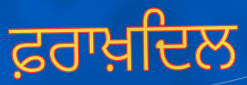
ਫ਼ਰਾਖ਼ਦਿਲ